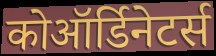
कोऑर्डिनेटर्स